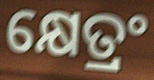
କ୍ଷେତ୍ରଂ